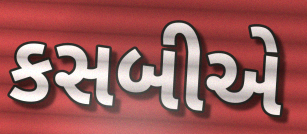
કસબીએ